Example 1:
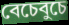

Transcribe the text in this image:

বেচেবুচে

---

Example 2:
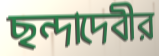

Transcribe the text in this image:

ছন্দাদেবীর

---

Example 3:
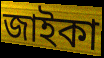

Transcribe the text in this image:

জাইকা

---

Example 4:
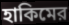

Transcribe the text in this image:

হাকিমের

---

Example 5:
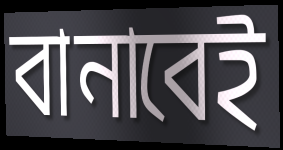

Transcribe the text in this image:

বানাবেই